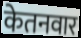
केतनवार